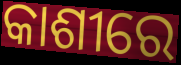
କାଶୀରେ